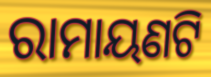
ରାମାୟଣଟି